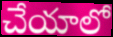
చేయాలో